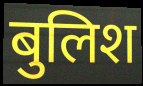
बुलिश